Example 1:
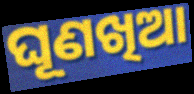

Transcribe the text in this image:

ଘୂଣଖିଆ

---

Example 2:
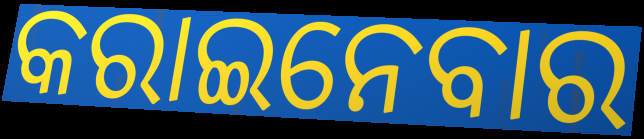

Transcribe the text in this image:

କରାଇନେବାର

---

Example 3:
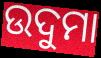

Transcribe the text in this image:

ଉଦୁମା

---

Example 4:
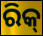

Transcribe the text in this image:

ରିକ୍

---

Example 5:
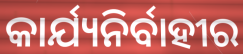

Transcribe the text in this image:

କାର୍ଯ୍ୟନିର୍ବାହୀର